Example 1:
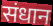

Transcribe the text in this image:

संधान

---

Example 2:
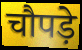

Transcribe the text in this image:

चौपड़े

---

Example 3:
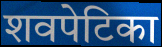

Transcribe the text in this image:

शवपेटिका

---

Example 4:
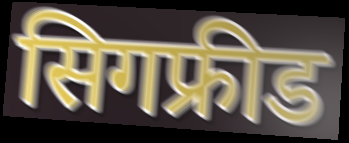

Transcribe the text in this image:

सिगफ्रीड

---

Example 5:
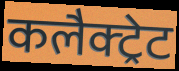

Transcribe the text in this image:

कलैक्ट्रेट